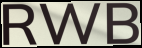
RWB